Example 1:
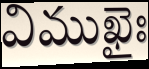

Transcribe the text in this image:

విముఖైః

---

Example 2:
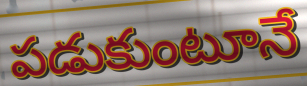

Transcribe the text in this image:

పడుకుంటూనే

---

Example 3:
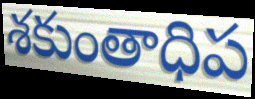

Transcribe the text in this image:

శకుంతాధిప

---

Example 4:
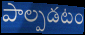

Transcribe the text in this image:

పాల్పడటం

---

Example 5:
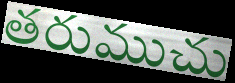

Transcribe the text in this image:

తరుముచు